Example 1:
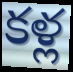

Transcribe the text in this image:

కళ్ల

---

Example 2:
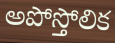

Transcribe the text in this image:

అపోస్తోలిక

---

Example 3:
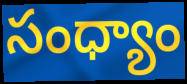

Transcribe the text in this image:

సంధ్యాం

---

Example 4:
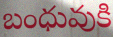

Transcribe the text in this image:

బంధువుకి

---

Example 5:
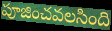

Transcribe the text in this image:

పూజించవలసింది